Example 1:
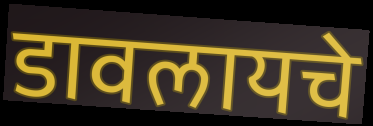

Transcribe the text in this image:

डावलायचे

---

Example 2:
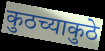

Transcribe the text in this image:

कुठच्याकुठे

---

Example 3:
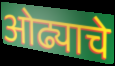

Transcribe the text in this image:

ओढ्याचे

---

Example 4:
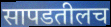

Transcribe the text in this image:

सापडतीलच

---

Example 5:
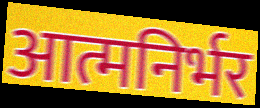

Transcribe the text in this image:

आत्मनिर्भर